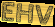
EHV